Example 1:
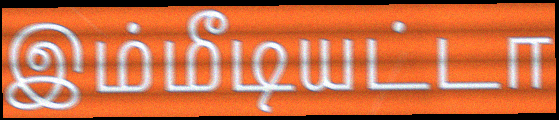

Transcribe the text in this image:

இம்மீடியட்டா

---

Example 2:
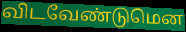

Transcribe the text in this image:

விடவேண்டுமென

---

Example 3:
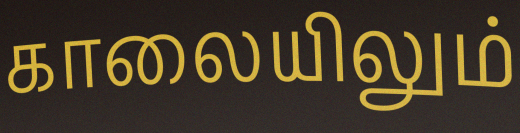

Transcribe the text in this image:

காலையிலும்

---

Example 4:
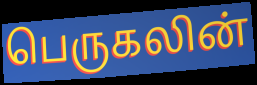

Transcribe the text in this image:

பெருகலின்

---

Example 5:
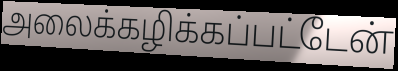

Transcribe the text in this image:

அலைக்கழிக்கப்பட்டேன்